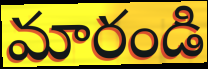
మారండి